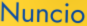
Nuncio